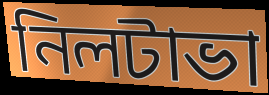
নিলটাভা